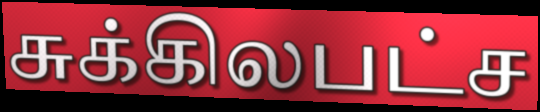
சுக்கிலபட்ச